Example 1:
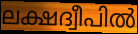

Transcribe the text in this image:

ലക്ഷദ്വീപിൽ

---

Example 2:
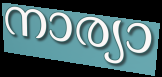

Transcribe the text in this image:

നാര്യാ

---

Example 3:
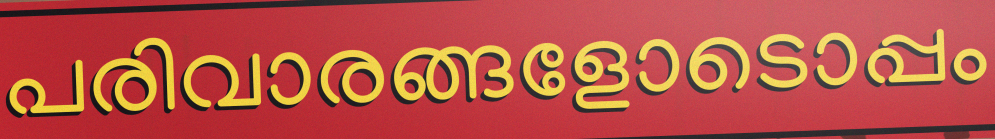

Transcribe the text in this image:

പരിവാരങ്ങളോടൊപ്പം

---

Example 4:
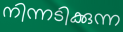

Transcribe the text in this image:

നിന്നടിക്കുന്ന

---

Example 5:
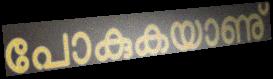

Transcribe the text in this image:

പോകുകയാണു്